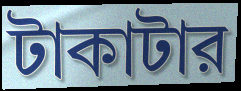
টাকাটার